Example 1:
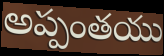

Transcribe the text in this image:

అప్పంతయు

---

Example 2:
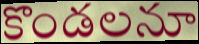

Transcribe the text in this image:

కొండలనూ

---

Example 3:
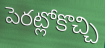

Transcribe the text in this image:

పెరట్లోకొచ్చి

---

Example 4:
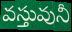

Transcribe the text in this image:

వస్తువునీ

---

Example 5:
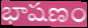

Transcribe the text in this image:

భాషణం